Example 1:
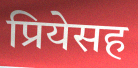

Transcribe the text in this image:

प्रियेसह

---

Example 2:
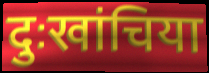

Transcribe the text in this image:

दुःखांचिया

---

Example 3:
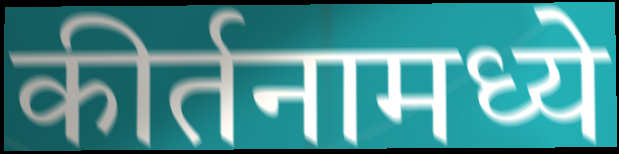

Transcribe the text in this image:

कीर्तनामध्ये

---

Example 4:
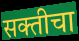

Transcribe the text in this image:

सक्तीचा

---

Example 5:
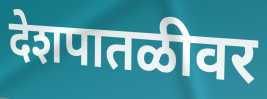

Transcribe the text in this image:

देशपातळीवर